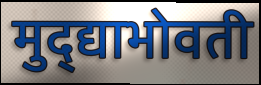
मुद्द्याभोवती